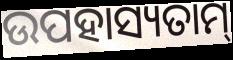
ଉପହାସ୍ୟତାମ୍